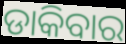
ଡାକିବାର